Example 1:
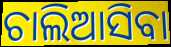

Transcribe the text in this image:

ଚାଲିଆସିବା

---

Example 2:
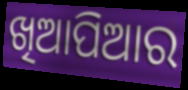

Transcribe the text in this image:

ଖିଆପିଆର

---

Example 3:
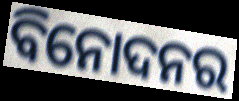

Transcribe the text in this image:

ବିନୋଦନର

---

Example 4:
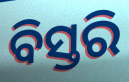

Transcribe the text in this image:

ବିସ୍ତରି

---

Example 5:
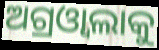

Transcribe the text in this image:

ଅଗ୍ରଓ୍ୱାଲାକୁ